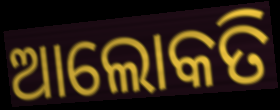
ଆଲୋକତି